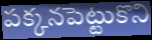
పక్కనపెట్టుకొని